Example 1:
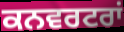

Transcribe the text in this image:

ਕਨਵਰਟਰਾਂ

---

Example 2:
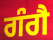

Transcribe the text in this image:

ਗੰਗੈ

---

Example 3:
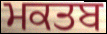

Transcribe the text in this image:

ਮਕਤਬ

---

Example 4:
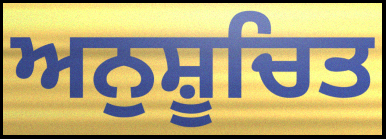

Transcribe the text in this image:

ਅਨੁਸ਼ੂਚਿਤ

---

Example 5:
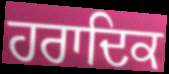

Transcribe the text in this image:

ਹਰਾਦਿਕ